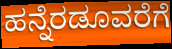
ಹನ್ನೆರಡೂವರೆಗೆ